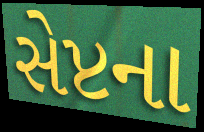
સેપ્ટના